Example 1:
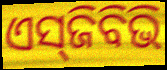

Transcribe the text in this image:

ଏସ୍‌ଜିବିଭି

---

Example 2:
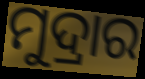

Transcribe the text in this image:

ମୁଦ୍ରାର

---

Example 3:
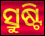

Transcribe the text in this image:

ସ୍ରୁଷ୍ଟି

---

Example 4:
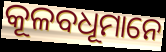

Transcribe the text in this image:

କୂଳବଧୂମାନେ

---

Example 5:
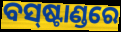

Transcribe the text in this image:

ବସ୍‍ଷ୍ଟାଣ୍ଡରେ